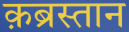
क़ब्रस्तान